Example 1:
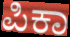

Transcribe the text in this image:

ಪಿಕಾ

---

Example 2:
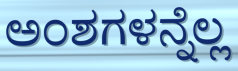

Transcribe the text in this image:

ಅಂಶಗಳನ್ನೆಲ್ಲ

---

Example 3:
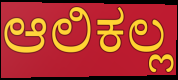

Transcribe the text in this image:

ಆಲಿಕಲ್ಲ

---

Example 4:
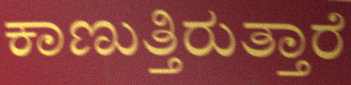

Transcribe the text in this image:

ಕಾಣುತ್ತಿರುತ್ತಾರೆ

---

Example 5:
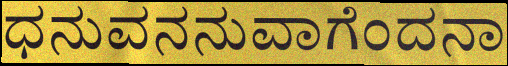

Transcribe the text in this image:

ಧನುವನನುವಾಗೆಂದನಾ